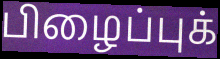
பிழைப்புக்